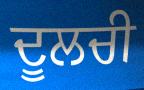
ਦੂਲਚੀ